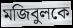
মজিবুলকে